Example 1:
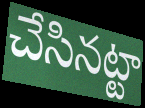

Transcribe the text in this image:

చేసినట్టా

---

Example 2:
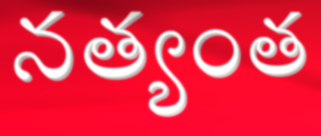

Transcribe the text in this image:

నత్యంత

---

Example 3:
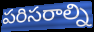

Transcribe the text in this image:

పరిసరాల్ని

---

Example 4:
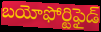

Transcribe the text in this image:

బయోఫోర్టిఫైడ్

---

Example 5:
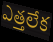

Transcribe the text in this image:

ఎత్తలేక